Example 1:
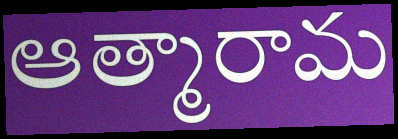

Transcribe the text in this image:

ఆత్మారామ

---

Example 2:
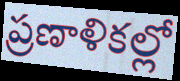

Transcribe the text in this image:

ప్రణాళికల్లో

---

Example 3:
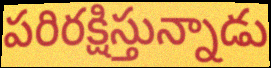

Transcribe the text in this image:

పరిరక్షిస్తున్నాడు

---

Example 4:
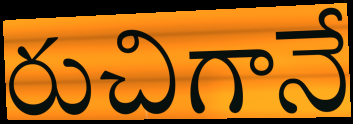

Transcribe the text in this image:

రుచిగానే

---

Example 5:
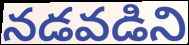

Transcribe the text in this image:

నడవడిని